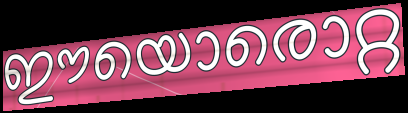
ഈയൊരൊറ്റ